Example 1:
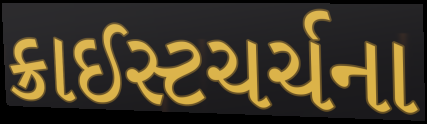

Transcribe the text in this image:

ક્રાઈસ્ટચર્ચના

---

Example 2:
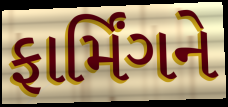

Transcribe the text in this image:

ફાર્મિંગને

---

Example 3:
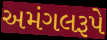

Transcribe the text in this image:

અમંગલરૂપે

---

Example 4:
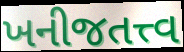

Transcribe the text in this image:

ખનીજતત્ત્વ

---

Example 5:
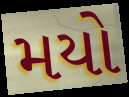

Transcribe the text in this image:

મયો